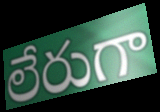
లేరుగా